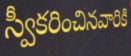
స్వీకరించినవారికి